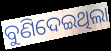
ବୁଣିଦେଇଥିଲା